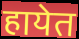
हायेत